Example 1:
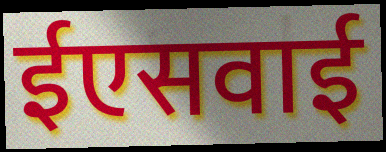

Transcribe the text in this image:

ईएसवाई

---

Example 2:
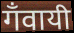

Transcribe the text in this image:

गँवायी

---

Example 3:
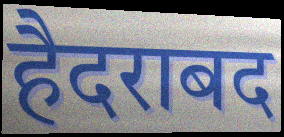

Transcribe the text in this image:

हैदराबद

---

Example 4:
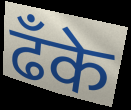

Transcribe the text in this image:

ढँके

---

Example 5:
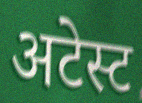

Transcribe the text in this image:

अटेस्ट